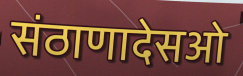
संठाणादेसओ